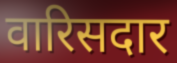
वारिसदार